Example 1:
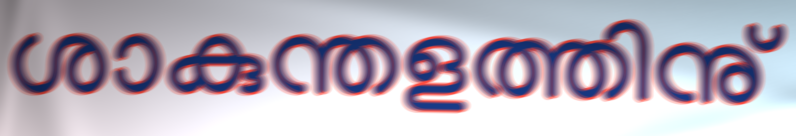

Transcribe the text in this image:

ശാകുന്തളത്തിനു്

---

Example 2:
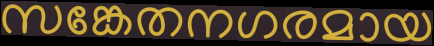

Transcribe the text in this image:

സങ്കേതനഗരമായ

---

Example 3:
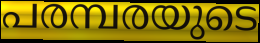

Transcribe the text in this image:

പരമ്പരയുടെ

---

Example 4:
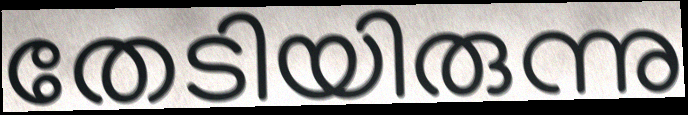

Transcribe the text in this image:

തേടിയിരുന്നു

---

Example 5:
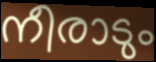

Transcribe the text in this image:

നീരാടും